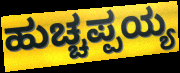
ಹುಚ್ಚಪ್ಪಯ್ಯ